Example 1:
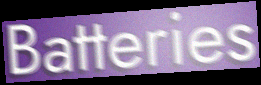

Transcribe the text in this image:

Batteries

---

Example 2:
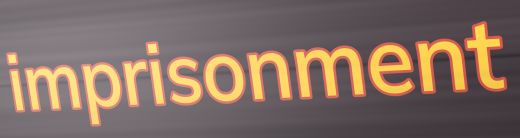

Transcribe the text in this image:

imprisonment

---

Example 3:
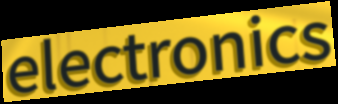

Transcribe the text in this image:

electronics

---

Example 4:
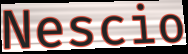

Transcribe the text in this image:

Nescio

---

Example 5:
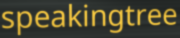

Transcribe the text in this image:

speakingtree